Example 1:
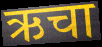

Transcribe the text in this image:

ऋचा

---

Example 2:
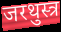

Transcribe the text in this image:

जरथुस्‍त्र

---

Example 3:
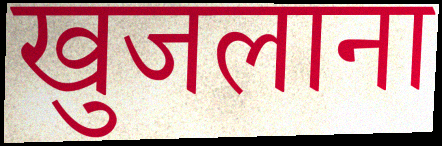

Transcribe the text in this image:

खुजलाना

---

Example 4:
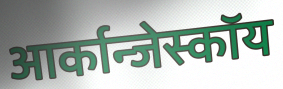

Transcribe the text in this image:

आर्कान्जेस्कॉय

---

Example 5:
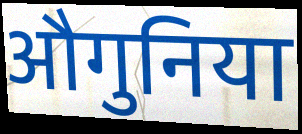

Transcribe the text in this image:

औगुनिया